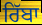
ਰਿੱਬਾ